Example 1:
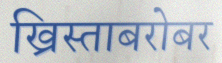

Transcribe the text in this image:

ख्रिस्ताबरोबर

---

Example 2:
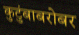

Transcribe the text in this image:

कुटुंबाबरोबर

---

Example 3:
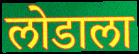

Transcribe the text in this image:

लोडाला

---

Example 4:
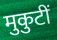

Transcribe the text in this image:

मुकुटीं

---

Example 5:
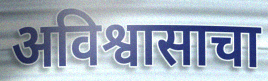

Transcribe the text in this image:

अविश्वासाचा